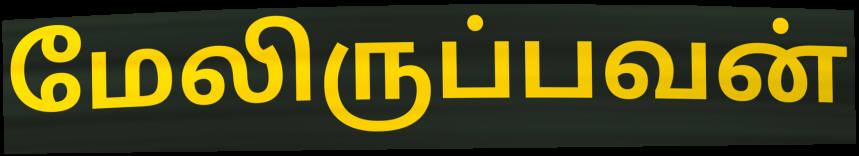
மேலிருப்பவன்